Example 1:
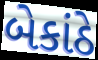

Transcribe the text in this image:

બેકાંઠે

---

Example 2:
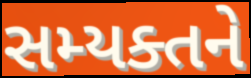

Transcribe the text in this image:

સમ્યક્તને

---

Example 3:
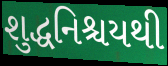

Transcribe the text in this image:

શુદ્ધનિશ્ચયથી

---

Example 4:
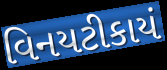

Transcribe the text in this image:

વિનયટીકાયં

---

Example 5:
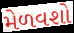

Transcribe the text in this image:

મેળવશો